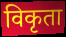
विकृता